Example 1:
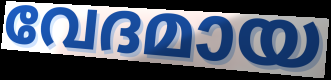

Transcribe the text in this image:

വേദമായ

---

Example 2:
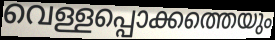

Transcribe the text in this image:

വെള്ളപ്പൊക്കത്തെയും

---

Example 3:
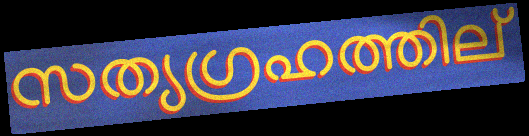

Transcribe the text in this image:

സത്യഗ്രഹത്തില്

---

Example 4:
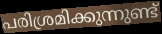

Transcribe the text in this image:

പരിശ്രമിക്കുന്നുണ്ട്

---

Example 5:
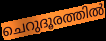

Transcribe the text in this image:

ചെറുദൂരത്തിൽ